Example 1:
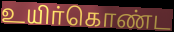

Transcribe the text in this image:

உயிர்கொண்ட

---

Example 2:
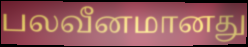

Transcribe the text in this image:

பலவீனமானது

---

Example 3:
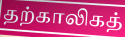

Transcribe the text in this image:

தற்காலிகத்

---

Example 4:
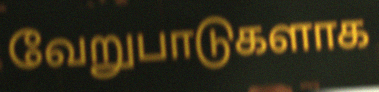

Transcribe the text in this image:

வேறுபாடுகளாக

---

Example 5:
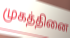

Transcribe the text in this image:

முகத்தினை